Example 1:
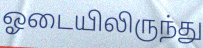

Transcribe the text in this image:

ஓடையிலிருந்து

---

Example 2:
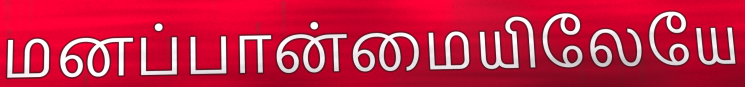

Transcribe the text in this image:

மனப்பான்மையிலேயே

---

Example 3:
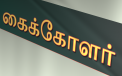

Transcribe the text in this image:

கைக்கோளர்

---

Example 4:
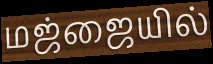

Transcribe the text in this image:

மஜ்ஜையில்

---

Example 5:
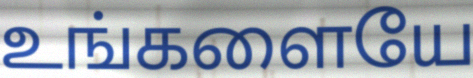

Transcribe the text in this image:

உங்களையே